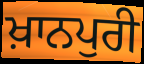
ਖ਼ਾਨਪੁਰੀ